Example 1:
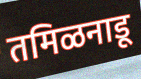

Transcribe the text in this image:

तमिळनाडू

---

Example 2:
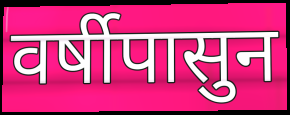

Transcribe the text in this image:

वर्षीपासुन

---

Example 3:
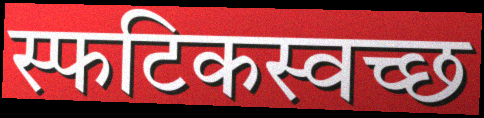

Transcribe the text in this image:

स्फटिकस्वच्छ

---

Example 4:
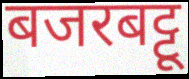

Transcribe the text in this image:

बजरबट्टू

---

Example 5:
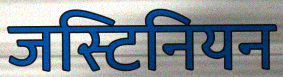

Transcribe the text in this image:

जस्टिनियन